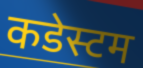
कडेस्टम